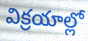
విక్రయాల్లో